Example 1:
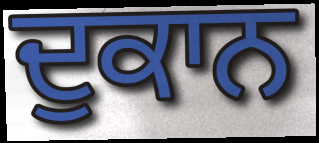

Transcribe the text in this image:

ਦੁਕਾਨ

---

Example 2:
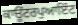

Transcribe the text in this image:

ਕਾਊਂਟਰਪੁਆਇੰਟ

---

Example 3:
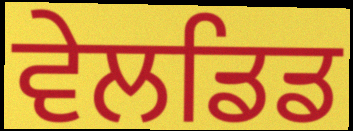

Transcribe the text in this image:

ਵੇਲਡਿਡ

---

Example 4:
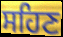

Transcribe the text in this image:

ਸਹਿਣ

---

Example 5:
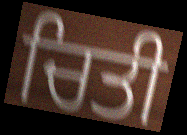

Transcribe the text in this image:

ਚਿਤੀ